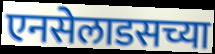
एनसेलाडसच्या